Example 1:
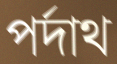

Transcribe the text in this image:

পর্দাথ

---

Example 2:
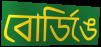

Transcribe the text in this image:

বোর্ডিঙে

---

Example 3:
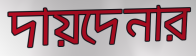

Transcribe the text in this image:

দায়দেনার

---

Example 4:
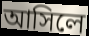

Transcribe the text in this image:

আসিলে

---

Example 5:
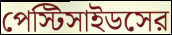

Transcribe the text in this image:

পেস্টিসাইডসের